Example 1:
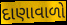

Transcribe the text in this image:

દાણાવાળો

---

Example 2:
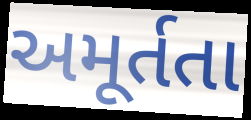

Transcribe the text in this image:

અમૂર્તતા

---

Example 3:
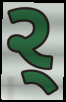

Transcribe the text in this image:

ર્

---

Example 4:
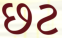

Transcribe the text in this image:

છટ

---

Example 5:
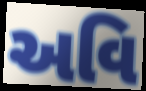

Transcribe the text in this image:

અવિ